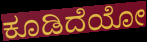
ಕೂಡಿದೆಯೋ